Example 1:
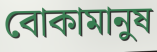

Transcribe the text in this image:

বোকামানুষ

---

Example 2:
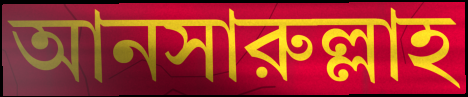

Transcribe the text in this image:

আনসারুল্লাহ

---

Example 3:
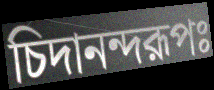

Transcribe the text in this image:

চিদানন্দরূপঃ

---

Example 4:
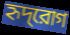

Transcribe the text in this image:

হৃদ্‌রোগ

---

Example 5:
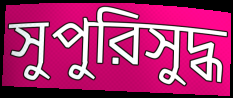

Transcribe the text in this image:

সুপুরিসুদ্ধ